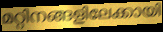
മറ്റിനങ്ങളിലേക്കായി